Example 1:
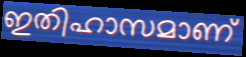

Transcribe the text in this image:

ഇതിഹാസമാണ്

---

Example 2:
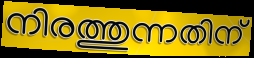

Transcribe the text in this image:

നിരത്തുന്നതിന്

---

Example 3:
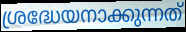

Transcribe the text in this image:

ശ്രദ്ധേയനാക്കുന്നത്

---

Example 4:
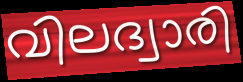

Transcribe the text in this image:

വിലദ്വാരി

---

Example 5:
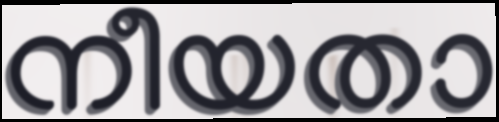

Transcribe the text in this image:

നീയതാ